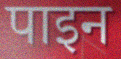
पाइन